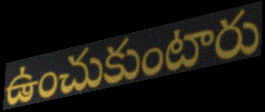
ఉంచుకుంటారు